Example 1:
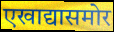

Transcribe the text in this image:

एखाद्यासमोर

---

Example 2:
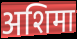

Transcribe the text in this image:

अशिमा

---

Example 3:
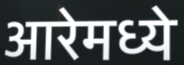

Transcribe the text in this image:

आरेमध्ये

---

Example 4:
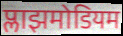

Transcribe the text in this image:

प्लाझमोडियम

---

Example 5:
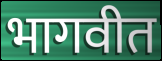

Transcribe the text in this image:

भागवीत